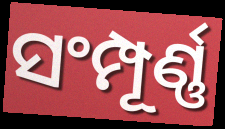
ସଂମ୍ପୂର୍ଣ୍ଣ